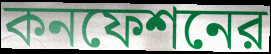
কনফেশনের